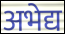
अभेद्य